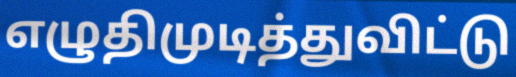
எழுதிமுடித்துவிட்டு